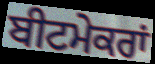
ਬੀਟਮੇਕਰਾਂ